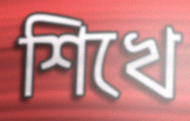
শিখে